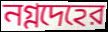
নগ্নদেহের